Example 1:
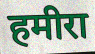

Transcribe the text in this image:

हमीरा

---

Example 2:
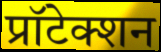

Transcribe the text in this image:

प्रॉटेक्शन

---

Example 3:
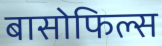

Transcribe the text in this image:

बासोफिल्स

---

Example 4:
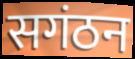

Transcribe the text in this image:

सगंठन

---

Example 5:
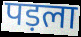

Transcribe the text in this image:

पड़ला